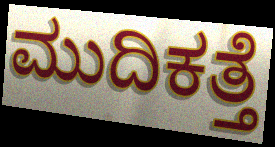
ಮುದಿಕತ್ತೆ